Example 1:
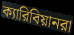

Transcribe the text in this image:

ক্যারিবিয়ানরা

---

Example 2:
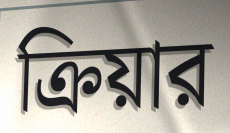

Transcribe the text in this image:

ক্রিয়ার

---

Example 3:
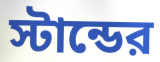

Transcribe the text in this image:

স্টান্ডের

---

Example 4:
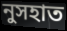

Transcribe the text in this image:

নুসহাত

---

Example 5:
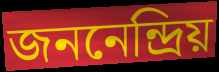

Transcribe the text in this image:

জননেন্দ্রিয়